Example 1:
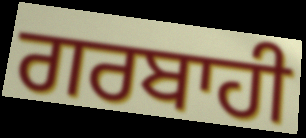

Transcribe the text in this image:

ਗਰਬਾਹੀ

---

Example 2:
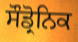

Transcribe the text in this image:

ਸੌਡ੍ਰੋਨਿਕ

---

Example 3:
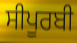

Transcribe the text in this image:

ਸੀਪੂਰਬੀ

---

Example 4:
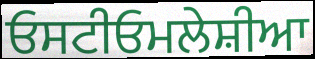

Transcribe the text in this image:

ਓਸਟੀਓਮਲੇਸ਼ੀਆ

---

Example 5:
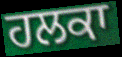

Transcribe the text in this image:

ਹਲਕਾ